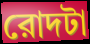
রোদটা